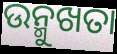
ଉନ୍ମୁଖତା